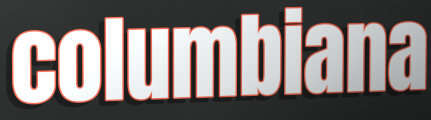
columbiana